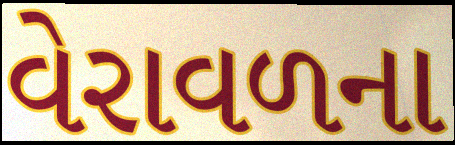
વેરાવળના